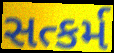
સત્કર્મ